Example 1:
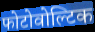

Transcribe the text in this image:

फोटोवोल्टिक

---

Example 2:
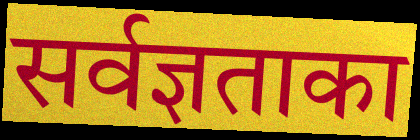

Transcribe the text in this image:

सर्वज्ञताका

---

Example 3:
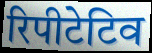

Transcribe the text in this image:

रिपीटेटिव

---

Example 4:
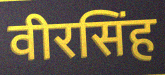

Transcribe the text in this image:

वीरसिंह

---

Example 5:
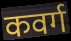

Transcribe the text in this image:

कवर्ग